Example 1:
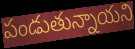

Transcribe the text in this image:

పండుతున్నాయని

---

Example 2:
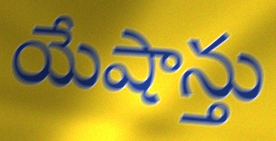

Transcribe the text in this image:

యేషాన్తు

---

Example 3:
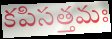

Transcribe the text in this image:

కపిసత్తమః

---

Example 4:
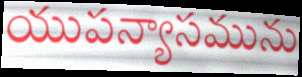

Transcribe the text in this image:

యుపన్యాసమును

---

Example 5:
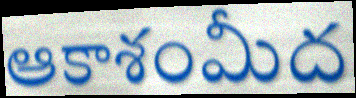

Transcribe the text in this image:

ఆకాశంమీద